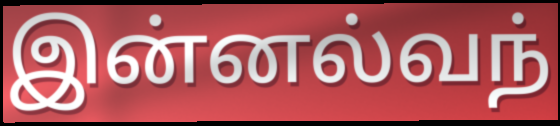
இன்னல்வந்